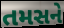
તમસને